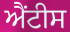
ਐਂਟੀਸ